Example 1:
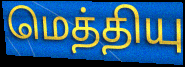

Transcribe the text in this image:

மெத்தியு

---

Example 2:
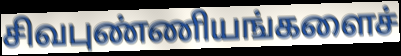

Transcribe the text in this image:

சிவபுண்ணியங்களைச்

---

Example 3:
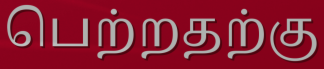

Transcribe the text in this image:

பெற்றதற்கு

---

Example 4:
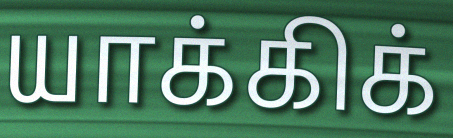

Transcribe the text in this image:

யாக்கிக்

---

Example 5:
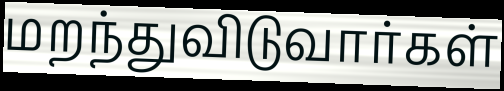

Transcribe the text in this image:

மறந்துவிடுவார்கள்